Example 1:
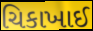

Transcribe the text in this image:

ચિકાખાઈ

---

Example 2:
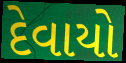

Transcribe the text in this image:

દેવાયો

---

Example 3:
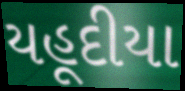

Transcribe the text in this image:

યહૂદીયા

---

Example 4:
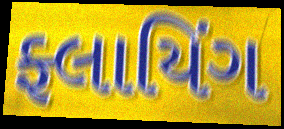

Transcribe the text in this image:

ફ્લાયિંગ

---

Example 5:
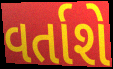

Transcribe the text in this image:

વર્તાશે